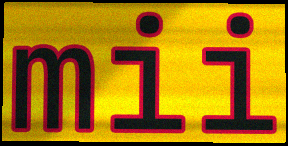
mii